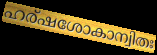
ഹര്ഷശോകാന്വിതഃ